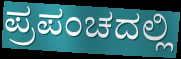
ಪ್ರಪಂಚದಲ್ಲಿ